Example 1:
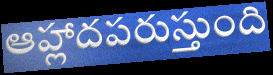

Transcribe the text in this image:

ఆహ్లాదపరుస్తుంది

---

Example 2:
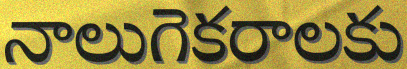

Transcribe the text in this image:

నాలుగెకరాలకు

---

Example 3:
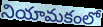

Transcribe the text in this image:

నియామకంలో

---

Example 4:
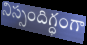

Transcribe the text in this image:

నిస్సందిగ్ధంగా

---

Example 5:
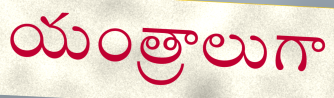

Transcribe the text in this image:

యంత్రాలుగా